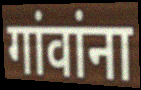
गांवांना